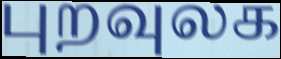
புறவுலக